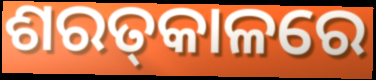
ଶରତ୍‌କାଳରେ